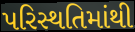
પરિસ્થતિમાંથી